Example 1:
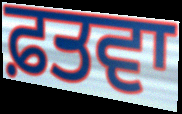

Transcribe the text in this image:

ਫ਼ਤਵਾ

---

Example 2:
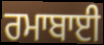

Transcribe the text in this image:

ਰਮਾਬਾਈ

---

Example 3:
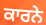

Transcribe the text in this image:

ਕਾਰਨੇ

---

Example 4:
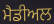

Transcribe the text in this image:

ਮੈਡੀਅਲ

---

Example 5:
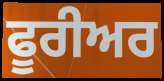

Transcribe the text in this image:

ਫੂਰੀਅਰ